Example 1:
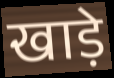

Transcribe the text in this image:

खाड़े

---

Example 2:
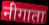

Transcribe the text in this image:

नीगाता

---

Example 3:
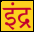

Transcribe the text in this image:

इंद्र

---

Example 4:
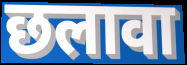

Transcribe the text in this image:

छलावा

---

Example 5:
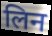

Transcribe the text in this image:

लिन